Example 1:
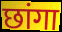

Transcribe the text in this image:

छांगा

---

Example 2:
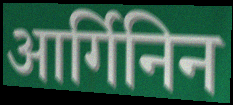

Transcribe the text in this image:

आर्गिनिन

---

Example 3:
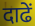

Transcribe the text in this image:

दाढें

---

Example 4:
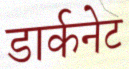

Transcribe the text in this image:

डार्कनेट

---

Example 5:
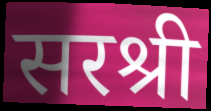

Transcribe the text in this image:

सरश्री